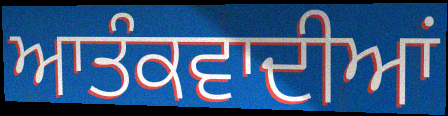
ਆਤੰਕਵਾਦੀਆਂ